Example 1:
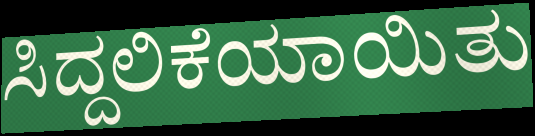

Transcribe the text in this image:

ಸಿದ್ದಲಿಕೆಯಾಯಿತು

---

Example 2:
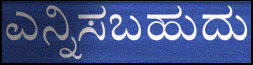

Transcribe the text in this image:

ಎನ್ನಿಸಬಹುದು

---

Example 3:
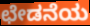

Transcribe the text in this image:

ಛೇಡನೆಯ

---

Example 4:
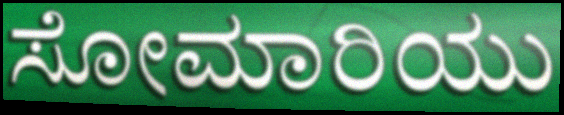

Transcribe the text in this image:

ಸೋಮಾರಿಯು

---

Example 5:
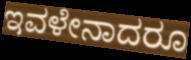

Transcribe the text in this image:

ಇವಳೇನಾದರೂ